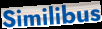
Similibus